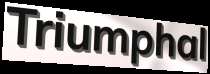
Triumphal